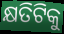
କ୍ଷତିଟିକୁ